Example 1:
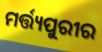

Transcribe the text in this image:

ମର୍ତ୍ତ୍ୟପୁରୀର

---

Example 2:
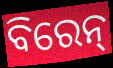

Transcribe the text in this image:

ବିରେନ୍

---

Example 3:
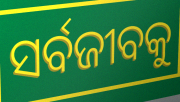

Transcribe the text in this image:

ସର୍ବଜୀବକୁ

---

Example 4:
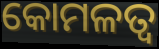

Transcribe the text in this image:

କୋମଳତ୍ୱ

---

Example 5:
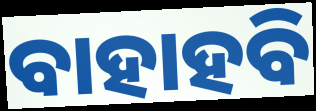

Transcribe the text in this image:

ବାହାହବି